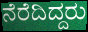
ನೆರೆದಿದ್ದರು